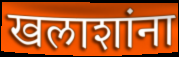
खलाशांना